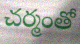
చర్మంతో